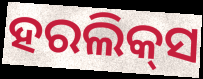
ହରଲିକ୍‍ସ